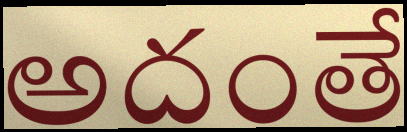
అదంతే